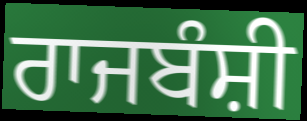
ਰਾਜਬੰਸ਼ੀ